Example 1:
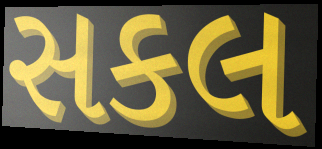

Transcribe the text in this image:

સકલ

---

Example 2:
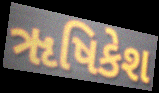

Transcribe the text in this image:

ૠષિકેશ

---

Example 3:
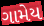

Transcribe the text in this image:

ગામેય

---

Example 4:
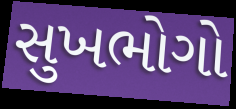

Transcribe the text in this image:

સુખભોગો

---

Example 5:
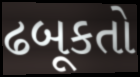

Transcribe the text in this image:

ઢબૂકતો